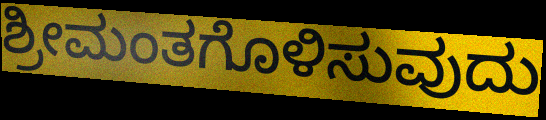
ಶ್ರೀಮಂತಗೊಳಿಸುವುದು